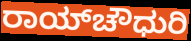
ರಾಯ್‌ಚೌಧುರಿ